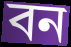
বন